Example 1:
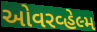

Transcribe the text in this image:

ઓવરવ્હેલ્મ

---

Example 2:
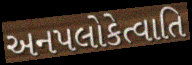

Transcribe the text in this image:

અનપલોકેત્વાતિ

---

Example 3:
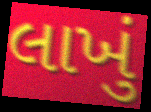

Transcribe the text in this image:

લાખું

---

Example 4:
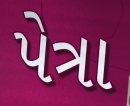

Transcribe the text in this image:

પેત્રા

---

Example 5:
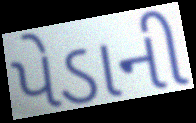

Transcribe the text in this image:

પેડાની